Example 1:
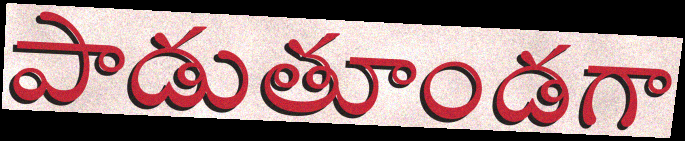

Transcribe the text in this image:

పాడుతూండగా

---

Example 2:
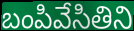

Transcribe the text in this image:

బంపివేసితిని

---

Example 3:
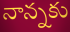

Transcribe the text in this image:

నాన్నకు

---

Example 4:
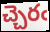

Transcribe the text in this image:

చ్చెరఁ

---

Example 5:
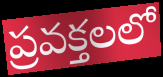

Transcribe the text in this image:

ప్రవక్తలలో